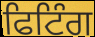
ਫਿਟਿੰਗ